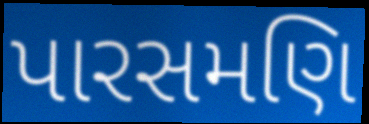
પારસમણિ